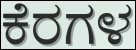
ಕೆರಗಳ